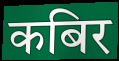
कबिर